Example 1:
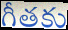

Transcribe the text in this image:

గీతకు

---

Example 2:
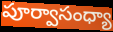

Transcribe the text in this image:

పూర్వాసంధ్యా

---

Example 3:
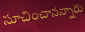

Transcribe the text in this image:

సూచించానన్నారు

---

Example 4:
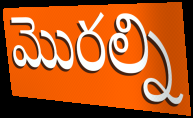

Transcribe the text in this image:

మొరల్ని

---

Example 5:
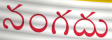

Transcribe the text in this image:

నంగదు